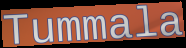
Tummala